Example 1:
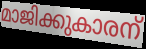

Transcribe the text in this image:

മാജിക്കുകാരന്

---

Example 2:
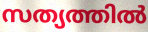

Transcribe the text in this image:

സത്യത്തിൽ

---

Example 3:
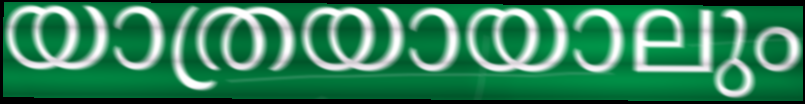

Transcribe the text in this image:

യാത്രയായാലും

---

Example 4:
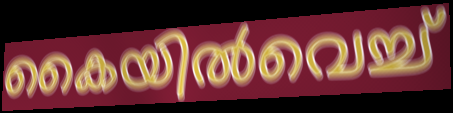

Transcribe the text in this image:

കൈയിൽവെച്ച്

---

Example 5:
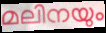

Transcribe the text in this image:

മലിനയും